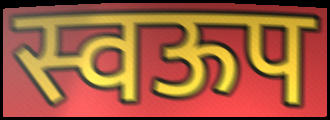
स्वऊप